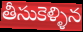
తీసుకెళ్ళిన